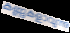
കണ്ണുകളാവുന്നു